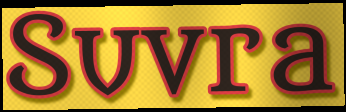
Suvra